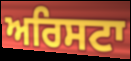
ਅਰਿਸਟਾ